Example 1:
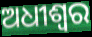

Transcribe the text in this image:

ଅଧୀଶ୍ୱର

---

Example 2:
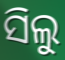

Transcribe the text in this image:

ସିଲୁ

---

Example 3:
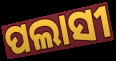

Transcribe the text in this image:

ପଲାସୀ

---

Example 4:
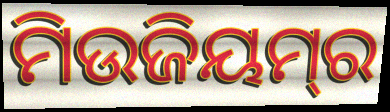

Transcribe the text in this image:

ମିଉଜିୟମ୍‌ର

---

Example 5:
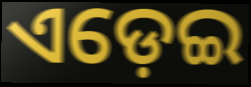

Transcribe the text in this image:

ଏଡ଼େଇ